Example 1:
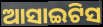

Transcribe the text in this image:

ଆସାଇଟିସ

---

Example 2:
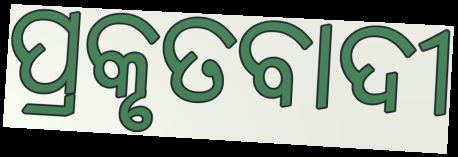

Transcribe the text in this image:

ପ୍ରକୃତବାଦୀ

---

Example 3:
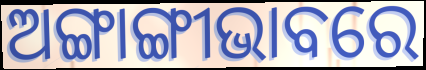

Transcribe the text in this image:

ଅଙ୍ଗାଙ୍ଗୀଭାବରେ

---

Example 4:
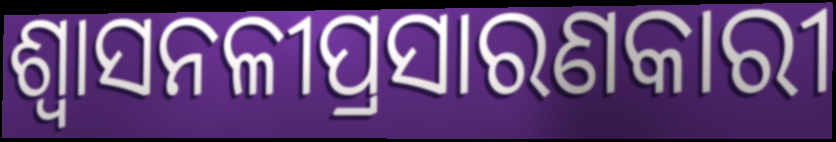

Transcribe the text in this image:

ଶ୍ୱାସନଳୀପ୍ରସାରଣକାରୀ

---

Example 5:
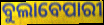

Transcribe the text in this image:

ବୁଲାବେପାରୀ